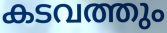
കടവത്തും